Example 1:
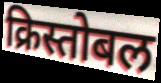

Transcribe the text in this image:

क्रिस्तोबल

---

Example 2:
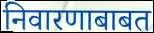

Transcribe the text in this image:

निवारणाबाबत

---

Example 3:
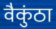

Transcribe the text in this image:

वैकुंठा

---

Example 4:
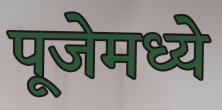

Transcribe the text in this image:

पूजेमध्ये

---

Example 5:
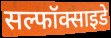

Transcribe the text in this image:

सल्फॉक्साइडे